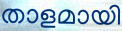
താളമായി